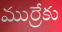
ముర్రేకు